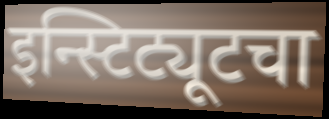
इन्स्टिट्यूटचा